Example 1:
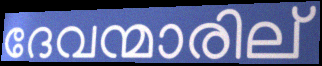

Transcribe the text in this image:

ദേവന്മാരില്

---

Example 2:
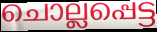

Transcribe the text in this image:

ചൊല്ലപ്പെട്ട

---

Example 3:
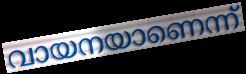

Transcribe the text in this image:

വായനയാണെന്ന്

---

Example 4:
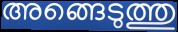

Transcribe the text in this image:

അങ്ങെടുത്തു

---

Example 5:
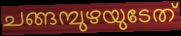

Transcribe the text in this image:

ചങ്ങമ്പുഴയുടേത്